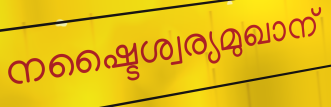
നഷ്ടൈശ്വര്യമുഖാന്